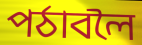
পঠাবলৈ